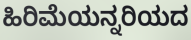
ಹಿರಿಮೆಯನ್ನರಿಯದ